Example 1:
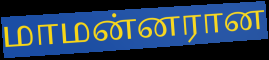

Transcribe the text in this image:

மாமன்னரான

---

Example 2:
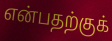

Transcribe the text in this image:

என்பதற்குக்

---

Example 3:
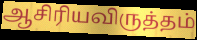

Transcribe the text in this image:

ஆசிரியவிருத்தம்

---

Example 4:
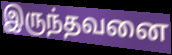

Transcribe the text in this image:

இருந்தவனை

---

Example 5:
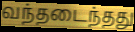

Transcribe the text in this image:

வந்தடைந்தது